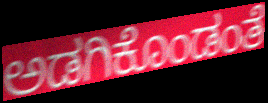
ಅಡಗಿಕೊಂಡಂತೆ